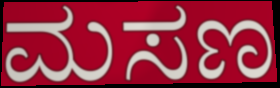
ಮಸಣ